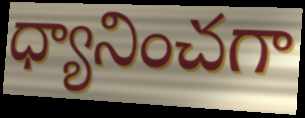
ధ్యానించగా